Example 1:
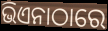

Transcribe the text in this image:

ଭିଏନାଠାରେ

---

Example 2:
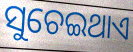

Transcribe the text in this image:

ସୁଚେଇଥାଏ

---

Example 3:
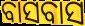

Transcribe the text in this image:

ବାସବାସ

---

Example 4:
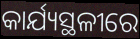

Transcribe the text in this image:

କାର୍ଯ୍ୟସ୍ଥଳୀରେ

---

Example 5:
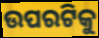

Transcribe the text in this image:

ଉପରଟିକୁ